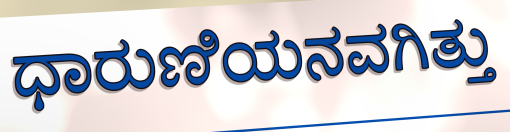
ಧಾರುಣಿಯನವಗಿತ್ತು